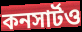
কনসার্টও